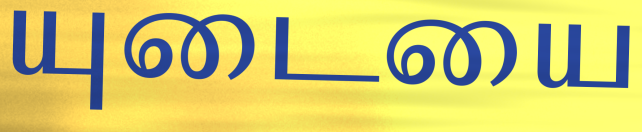
யுடையை